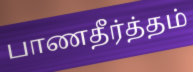
பாணதீர்த்தம்